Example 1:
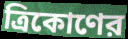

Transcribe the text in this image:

ত্রিকোণের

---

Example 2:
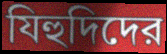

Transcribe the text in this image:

যিহুদিদের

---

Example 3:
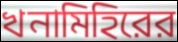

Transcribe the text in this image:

খনামিহিরের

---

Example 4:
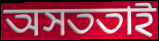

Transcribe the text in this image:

অসততাই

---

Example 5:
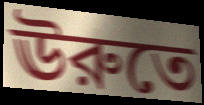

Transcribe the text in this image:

ঊরুতে